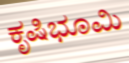
ಕೃಷಿಭೂಮಿ